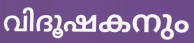
വിദൂഷകനും